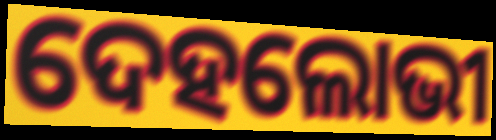
ଦେହଲୋଭୀ